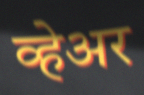
व्हेअर